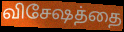
விசேஷத்தை